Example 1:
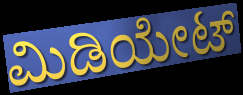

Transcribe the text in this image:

ಮಿಡಿಯೇಟ್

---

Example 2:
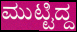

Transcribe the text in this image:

ಮುಟ್ಟಿದ್ದ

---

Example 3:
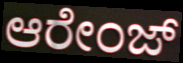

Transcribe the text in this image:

ಆರೇಂಜ್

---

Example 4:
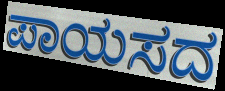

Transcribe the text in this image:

ಪಾಯಸದ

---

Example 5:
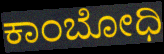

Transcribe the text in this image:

ಕಾಂಬೋಧಿ